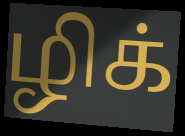
ழிக்